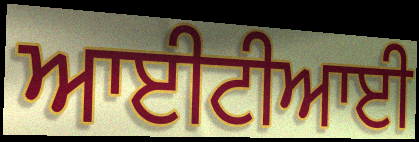
ਆਈਟੀਆਈ